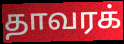
தாவரக்